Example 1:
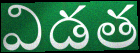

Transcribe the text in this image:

విడత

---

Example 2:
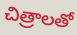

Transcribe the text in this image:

చిత్రాలతో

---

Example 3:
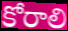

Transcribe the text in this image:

కోరాలి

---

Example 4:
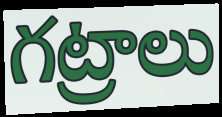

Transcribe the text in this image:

గట్రాలు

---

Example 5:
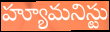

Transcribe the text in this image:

హ్యూమనిస్టు